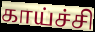
காய்ச்சி